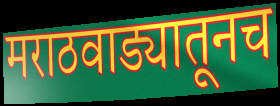
मराठवाड्यातूनच